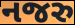
નજરુ